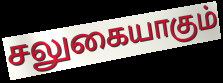
சலுகையாகும்